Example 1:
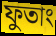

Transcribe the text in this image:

ফুতাং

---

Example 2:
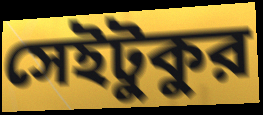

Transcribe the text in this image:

সেইটুকুর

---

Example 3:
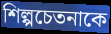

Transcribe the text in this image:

শিল্পচেতনাকে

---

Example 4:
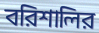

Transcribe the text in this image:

বরিশালির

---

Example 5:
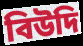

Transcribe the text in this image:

বিউদি